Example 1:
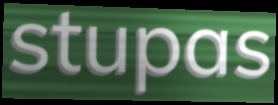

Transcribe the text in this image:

stupas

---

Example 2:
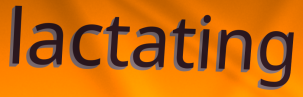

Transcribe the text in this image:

lactating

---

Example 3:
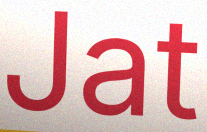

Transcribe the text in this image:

Jat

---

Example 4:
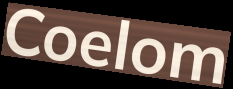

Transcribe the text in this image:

Coelom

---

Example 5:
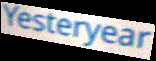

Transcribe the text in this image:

Yesteryear